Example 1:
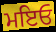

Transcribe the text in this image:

ਮਇਓ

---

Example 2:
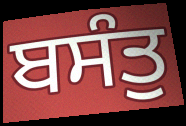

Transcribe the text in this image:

ਬਸੰਤੁ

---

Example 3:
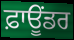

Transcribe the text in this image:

ਫ਼ਾਊਂਡਰ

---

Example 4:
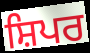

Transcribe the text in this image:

ਸ਼ਿਪਰ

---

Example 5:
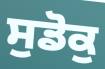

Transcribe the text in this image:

ਸੁਡੋਕੁ